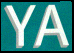
YA